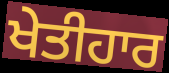
ਖੇਤੀਹਾਰ